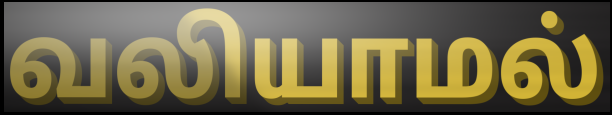
வலியாமல்